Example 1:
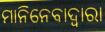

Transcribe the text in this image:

ମାନିନେବାଦ୍ୱାରା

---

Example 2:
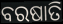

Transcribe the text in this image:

ବରଷାତି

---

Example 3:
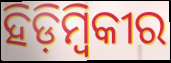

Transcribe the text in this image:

ହିଡ଼ିମ୍ବିକୀର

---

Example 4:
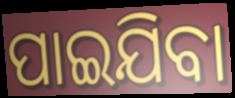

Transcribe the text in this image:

ପାଇଯିବା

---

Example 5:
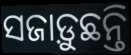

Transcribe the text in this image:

ସଜାଡ଼ୁଛନ୍ତି